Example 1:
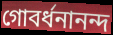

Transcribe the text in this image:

গোবর্ধনানন্দ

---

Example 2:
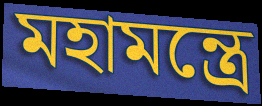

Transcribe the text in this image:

মহামন্ত্রে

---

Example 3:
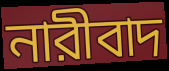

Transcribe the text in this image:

নারীবাদ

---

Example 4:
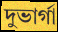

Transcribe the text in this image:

দুভার্গা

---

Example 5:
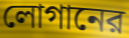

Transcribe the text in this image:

লোগানের